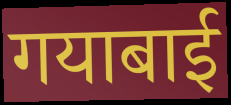
गयाबाई